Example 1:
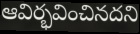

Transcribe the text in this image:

ఆవిర్భవించినదని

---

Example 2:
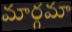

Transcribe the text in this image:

మార్గమా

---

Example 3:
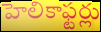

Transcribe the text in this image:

హెలికాఫ్టర్లు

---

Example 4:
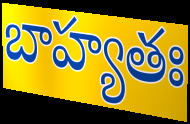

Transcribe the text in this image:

బాహ్యతః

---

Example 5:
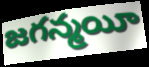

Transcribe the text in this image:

జగన్మయీ